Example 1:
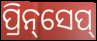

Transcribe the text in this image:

ପ୍ରିନ୍‌ସେପ୍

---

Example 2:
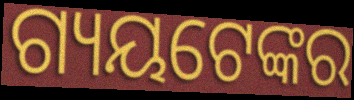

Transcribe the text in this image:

ଗ୍ୟୟଟେଙ୍କର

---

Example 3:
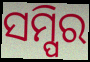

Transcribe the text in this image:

ସମ୍ପିର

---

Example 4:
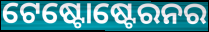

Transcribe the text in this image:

ଟେଷ୍ଟୋଷ୍ଟେରନର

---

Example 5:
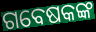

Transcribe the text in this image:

ଗବେଷକଙ୍କ